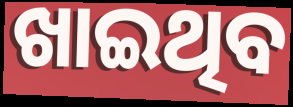
ଖାଇଥିବ